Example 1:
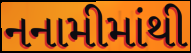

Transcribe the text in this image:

નનામીમાંથી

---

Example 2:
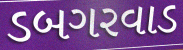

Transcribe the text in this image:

ડબગરવાડ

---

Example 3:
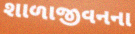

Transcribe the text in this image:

શાળાજીવનના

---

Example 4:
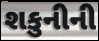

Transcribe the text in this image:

શકુનીની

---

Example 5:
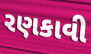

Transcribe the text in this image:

રણકાવી